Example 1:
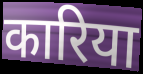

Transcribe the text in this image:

कारिया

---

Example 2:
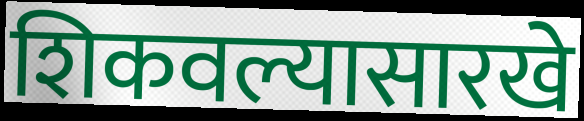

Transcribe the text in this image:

शिकवल्यासारखे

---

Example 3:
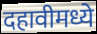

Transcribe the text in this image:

दहावीमध्ये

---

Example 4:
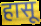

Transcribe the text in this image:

हासू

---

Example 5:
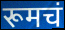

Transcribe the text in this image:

रूमचं